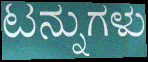
ಟನ್ನುಗಳು